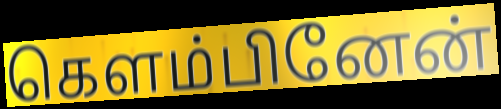
கெளம்பினேன்